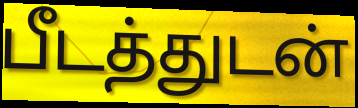
பீடத்துடன்